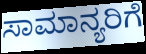
ಸಾಮಾನ್ಯರಿಗೆ